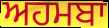
ਅਹਮਬਾ